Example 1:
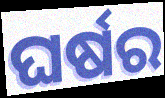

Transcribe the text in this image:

ଘର୍ଷର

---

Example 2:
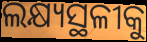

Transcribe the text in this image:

ଲକ୍ଷ୍ୟସ୍ଥଳୀକୁ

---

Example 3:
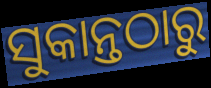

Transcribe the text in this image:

ସୁକାନ୍ତଠାରୁ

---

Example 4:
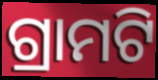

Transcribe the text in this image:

ଗ୍ରାମଟି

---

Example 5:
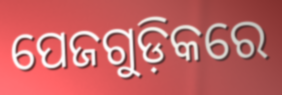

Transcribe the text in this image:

ପେଜଗୁଡ଼ିକରେ